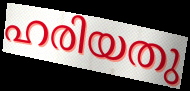
ഹരിയതു